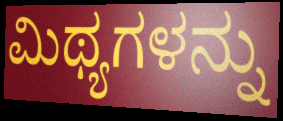
ಮಿಥ್ಯಗಳನ್ನು